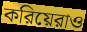
করিয়েরাও